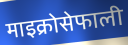
माइक्रोसेफाली